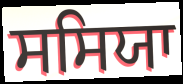
ਸਸਿਯਾ